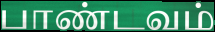
பாண்டவம்